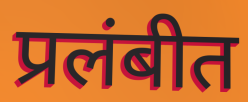
प्रलंबीत